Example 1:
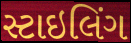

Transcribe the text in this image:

સ્ટાઇલિંગ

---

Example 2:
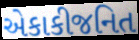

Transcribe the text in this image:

એકાકીજનિત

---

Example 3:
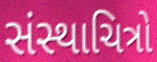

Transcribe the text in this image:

સંસ્થાચિત્રો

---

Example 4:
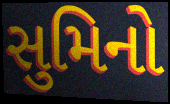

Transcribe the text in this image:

સુમિનો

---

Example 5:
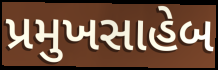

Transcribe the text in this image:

પ્રમુખસાહેબ